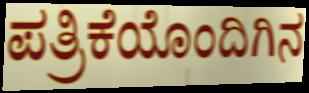
ಪತ್ರಿಕೆಯೊಂದಿಗಿನ